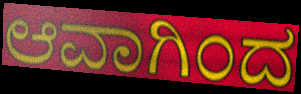
ಆವಾಗಿಂದ